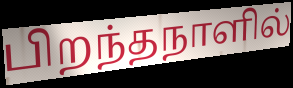
பிறந்தநாளில்